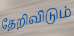
தேறிவிடும்